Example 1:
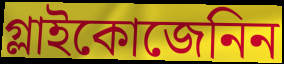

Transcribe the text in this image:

গ্লাইকোজেনিন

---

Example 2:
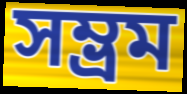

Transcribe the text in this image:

সম্ভ্রম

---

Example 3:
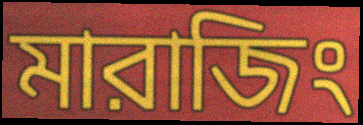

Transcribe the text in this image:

মারাজিং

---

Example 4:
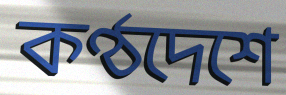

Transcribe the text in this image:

কণ্ঠদেশে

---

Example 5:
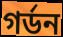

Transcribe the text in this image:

গর্ডন